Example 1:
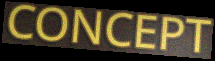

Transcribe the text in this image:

CONCEPT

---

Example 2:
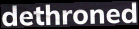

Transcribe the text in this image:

dethroned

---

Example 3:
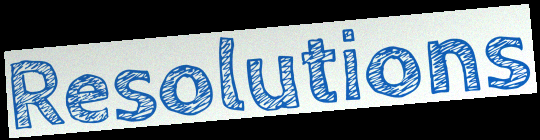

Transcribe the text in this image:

Resolutions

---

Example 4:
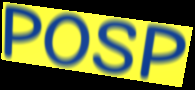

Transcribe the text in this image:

POSP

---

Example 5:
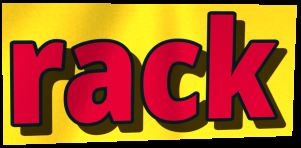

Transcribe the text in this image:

rack